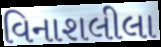
વિનાશલીલા